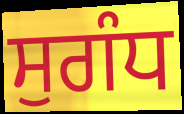
ਸੁਗੰਧ